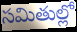
సమితుల్లో